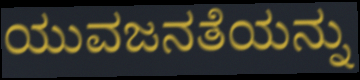
ಯುವಜನತೆಯನ್ನು